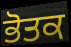
ਭੋਤਕ